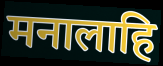
मनालाहि